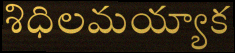
శిధిలమయ్యాక